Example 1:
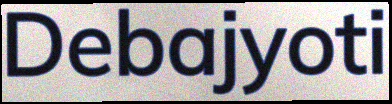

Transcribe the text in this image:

Debajyoti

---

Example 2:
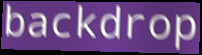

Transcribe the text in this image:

backdrop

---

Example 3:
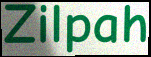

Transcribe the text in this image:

Zilpah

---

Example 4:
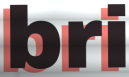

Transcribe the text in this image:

bri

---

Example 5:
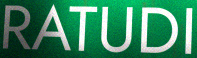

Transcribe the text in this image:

RATUDI